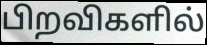
பிறவிகளில்